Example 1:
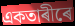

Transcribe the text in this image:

একতাৰীৰে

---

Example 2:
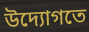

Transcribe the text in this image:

উদ্যোগতে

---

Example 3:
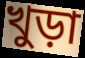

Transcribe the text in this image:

খুড়া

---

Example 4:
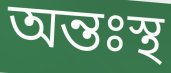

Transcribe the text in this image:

অন্তঃস্থ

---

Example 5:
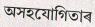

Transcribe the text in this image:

অসহযোগিতাৰ